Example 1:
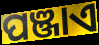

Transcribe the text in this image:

ପଞ୍ଜାଏ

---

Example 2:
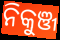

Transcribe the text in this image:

ନିକୁଞ୍ଜ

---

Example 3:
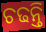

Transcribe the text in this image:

ଚଢନ୍ତି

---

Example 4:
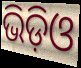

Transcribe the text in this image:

ଭିଡ଼ିଓ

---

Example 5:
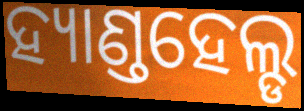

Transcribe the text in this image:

ହ୍ୟାଣ୍ଡହେଲ୍ଡ